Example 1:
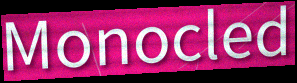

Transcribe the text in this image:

Monocled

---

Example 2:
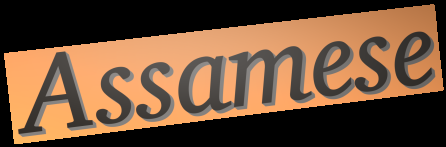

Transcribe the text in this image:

Assamese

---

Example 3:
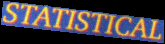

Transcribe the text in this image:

STATISTICAL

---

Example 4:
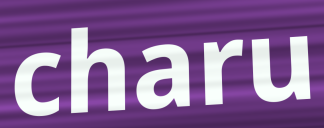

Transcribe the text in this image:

charu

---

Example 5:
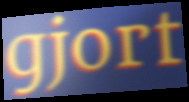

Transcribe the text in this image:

gjort